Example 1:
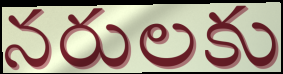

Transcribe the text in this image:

నరులకు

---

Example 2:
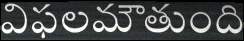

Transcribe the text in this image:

విఫలమౌతుంది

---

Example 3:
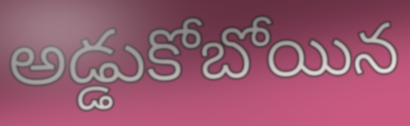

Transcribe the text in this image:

అడ్డుకోబోయిన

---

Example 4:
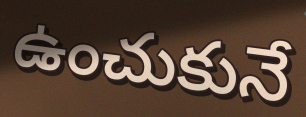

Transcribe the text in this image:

ఉంచుకునే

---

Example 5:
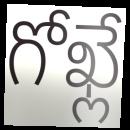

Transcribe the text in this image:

గోఖ్లే